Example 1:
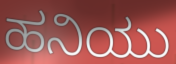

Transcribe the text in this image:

ಹನಿಯು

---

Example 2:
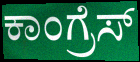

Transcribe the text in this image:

ಕಾಂಗ್ರೆಸ್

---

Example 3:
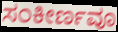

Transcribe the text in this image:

ಸಂಕೀರ್ಣವೂ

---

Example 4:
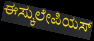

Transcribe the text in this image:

ಈಸ್ಕುಲೇಪಿಯಸ್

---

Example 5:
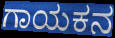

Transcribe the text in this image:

ಗಾಯಕನ